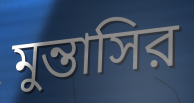
মুন্তাসির